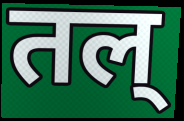
तल्